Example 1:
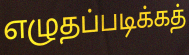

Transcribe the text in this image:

எழுதப்படிக்கத்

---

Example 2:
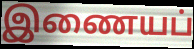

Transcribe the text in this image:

இணையப்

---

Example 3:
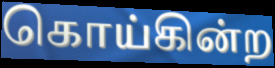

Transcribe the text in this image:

கொய்கின்ற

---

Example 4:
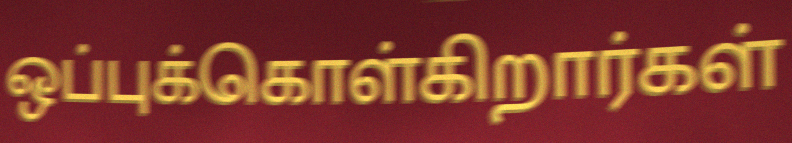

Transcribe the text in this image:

ஒப்புக்கொள்கிறார்கள்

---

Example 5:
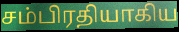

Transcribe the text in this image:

சம்பிரதியாகிய